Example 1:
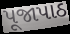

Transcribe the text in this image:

પૂજાપાઠ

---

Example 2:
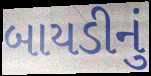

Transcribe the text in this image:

બાયડીનું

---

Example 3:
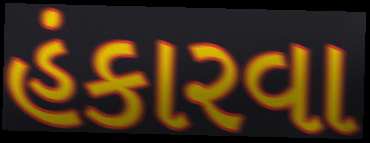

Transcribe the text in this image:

હંકારવા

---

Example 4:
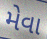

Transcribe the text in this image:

મેવા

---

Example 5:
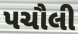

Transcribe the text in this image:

પચૌલી